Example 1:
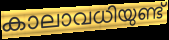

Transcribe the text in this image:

കാലാവധിയുണ്ട്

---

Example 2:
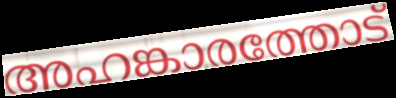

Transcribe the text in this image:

അഹങ്കാരത്തോട്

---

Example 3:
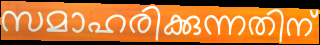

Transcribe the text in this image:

സമാഹരിക്കുന്നതിന്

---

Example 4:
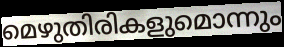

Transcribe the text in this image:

മെഴുതിരികളുമൊന്നും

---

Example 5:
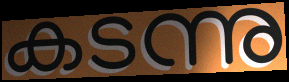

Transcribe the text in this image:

കടന്നു